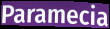
Paramecia